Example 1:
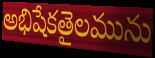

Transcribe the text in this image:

అభిషేకతైలమును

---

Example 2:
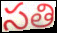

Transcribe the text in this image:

సతి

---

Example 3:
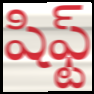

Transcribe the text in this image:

షిఫ్ట్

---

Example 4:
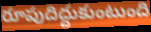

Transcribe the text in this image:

రూపుదిద్దుకుంటుంది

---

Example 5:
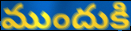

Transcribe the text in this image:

ముందుకి